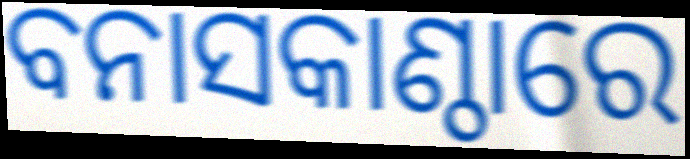
ବନାସକାଣ୍ଠାରେ